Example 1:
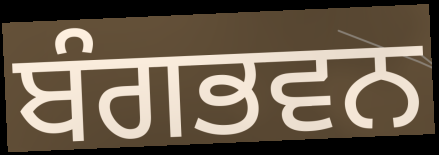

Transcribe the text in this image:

ਬੰਗਭਵਨ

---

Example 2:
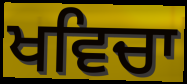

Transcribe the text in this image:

ਖਵਿਚਾ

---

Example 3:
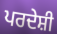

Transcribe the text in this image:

ਪਰਦੇਸ਼ੀ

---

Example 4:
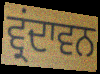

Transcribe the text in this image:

ਵ੍ਰਂਦਾਵਨ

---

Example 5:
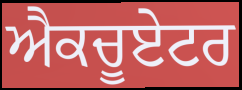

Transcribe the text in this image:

ਐਕਚੂਏਟਰ